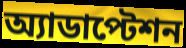
অ্যাডাপ্টেশন